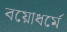
বয়োধর্মে